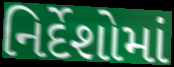
નિર્દેશોમાં